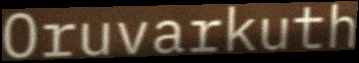
Oruvarkuth